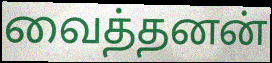
வைத்தனன்